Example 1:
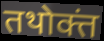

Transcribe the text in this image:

तथोक्तं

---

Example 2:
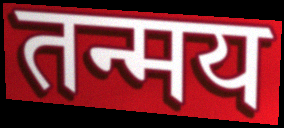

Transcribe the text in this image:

तन्‍मय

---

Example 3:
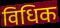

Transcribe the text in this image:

विधिक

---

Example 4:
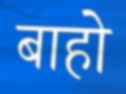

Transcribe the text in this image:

बाहो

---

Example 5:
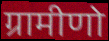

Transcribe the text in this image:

ग्रामीणो